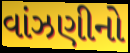
વાંઝણીનો